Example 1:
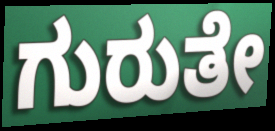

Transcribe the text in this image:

ಗುರುತೇ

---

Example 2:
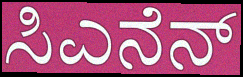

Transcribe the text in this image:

ಸಿಎನೆನ್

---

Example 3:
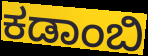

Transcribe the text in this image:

ಕಡಾಂಬಿ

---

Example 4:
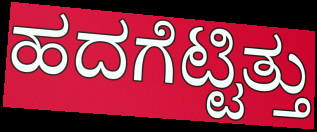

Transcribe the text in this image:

ಹದಗೆಟ್ಟಿತ್ತು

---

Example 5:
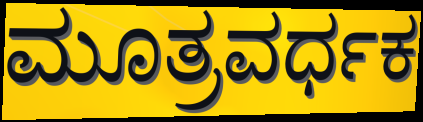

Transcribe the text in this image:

ಮೂತ್ರವರ್ಧಕ